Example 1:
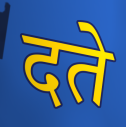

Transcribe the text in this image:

दते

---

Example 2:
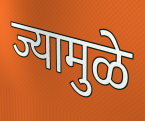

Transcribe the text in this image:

ज्यामुळे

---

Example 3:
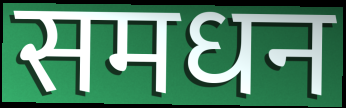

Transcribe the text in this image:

समधन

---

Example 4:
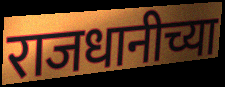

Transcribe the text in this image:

राजधानीच्या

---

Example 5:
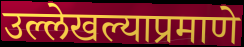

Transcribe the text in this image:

उल्लेखल्याप्रमाणे